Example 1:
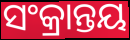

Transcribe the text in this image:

ସଂକ୍ରାନ୍ତୟ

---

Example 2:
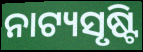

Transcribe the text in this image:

ନାଟ୍ୟସୃଷ୍ଟି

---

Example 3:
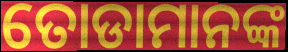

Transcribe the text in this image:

ତୋଡାମାନଙ୍କ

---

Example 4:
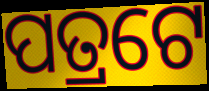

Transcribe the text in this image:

ପତ୍ରଟେ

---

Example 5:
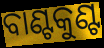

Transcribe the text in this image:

ବାଣ୍ଟକୁଣ୍ଟ